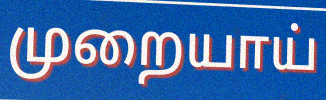
முறையாய்